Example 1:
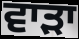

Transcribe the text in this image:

ਵਾੜਾ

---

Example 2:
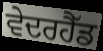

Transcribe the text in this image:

ਵੇਦਰਹੈੱਡ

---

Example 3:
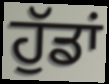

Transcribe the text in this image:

ਹੁੱਡਾਂ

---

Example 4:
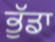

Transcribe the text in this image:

ਭੁੱਡਾ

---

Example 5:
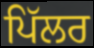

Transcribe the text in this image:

ਪਿੱਲਰ